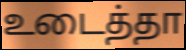
உடைத்தா